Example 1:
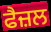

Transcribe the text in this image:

ਫੈਜ਼ਲ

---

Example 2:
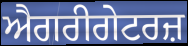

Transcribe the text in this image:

ਐਗਰੀਗੇਟਰਜ਼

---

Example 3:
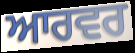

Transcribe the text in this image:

ਆਰਵਰ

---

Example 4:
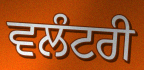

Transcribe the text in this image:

ਵਲੰਟਰੀ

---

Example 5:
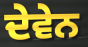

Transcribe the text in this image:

ਦੇਵੇਨ